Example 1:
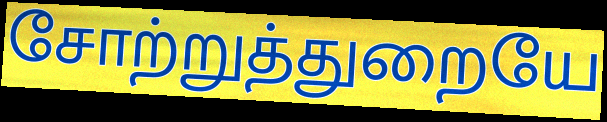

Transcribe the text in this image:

சோற்றுத்துறையே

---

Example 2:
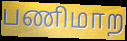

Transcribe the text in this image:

பணிமாற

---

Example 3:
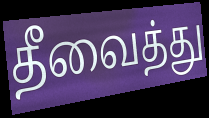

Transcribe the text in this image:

தீவைத்து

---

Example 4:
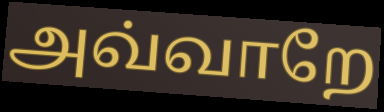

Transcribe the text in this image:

அவ்வாறே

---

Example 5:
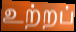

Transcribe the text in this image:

உற்றப்